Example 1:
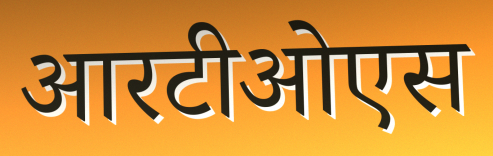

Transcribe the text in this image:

आरटीओएस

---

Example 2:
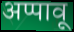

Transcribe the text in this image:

अप्पावू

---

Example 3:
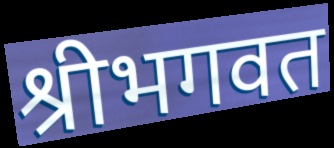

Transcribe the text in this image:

श्रीभगवत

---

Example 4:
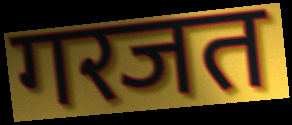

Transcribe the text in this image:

गरजत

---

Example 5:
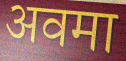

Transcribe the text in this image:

अवमा